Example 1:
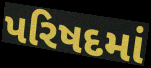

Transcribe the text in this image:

પરિષદમાં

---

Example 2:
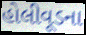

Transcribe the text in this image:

હોલીવૂડના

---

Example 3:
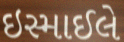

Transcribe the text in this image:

ઇસ્માઈલે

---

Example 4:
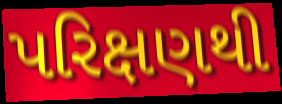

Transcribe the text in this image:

પરિક્ષણથી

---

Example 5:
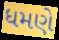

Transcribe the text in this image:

ધમણે